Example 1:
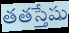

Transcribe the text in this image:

తతస్తేషు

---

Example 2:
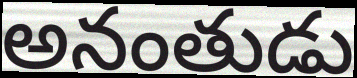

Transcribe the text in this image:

అనంతుడు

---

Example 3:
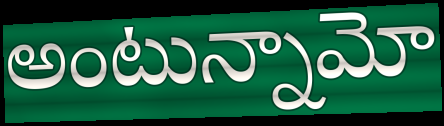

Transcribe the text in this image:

అంటున్నామో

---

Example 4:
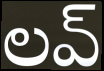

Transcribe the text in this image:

లవ్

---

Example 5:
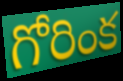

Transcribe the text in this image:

గోరింక